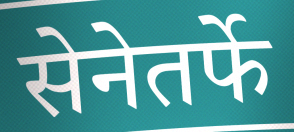
सेनेतर्फे